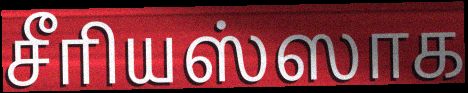
சீரியஸ்ஸாக